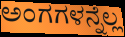
ಅಂಗಗಳನ್ನೆಲ್ಲ